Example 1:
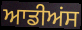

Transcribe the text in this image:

ਆਡੀਅਂਸ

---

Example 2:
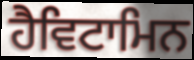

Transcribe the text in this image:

ਹੈਵਿਟਾਮਿਨ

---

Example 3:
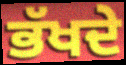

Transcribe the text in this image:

ਭੱਖਦੇ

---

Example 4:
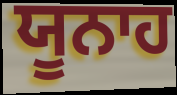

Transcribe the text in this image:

ਯੂਨਾਹ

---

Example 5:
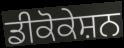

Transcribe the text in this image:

ਡੀਕੋਕੇਸ਼ਨ